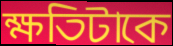
ক্ষতিটাকে